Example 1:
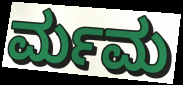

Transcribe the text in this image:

ರ್ಮಮ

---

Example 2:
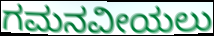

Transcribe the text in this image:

ಗಮನವೀಯಲು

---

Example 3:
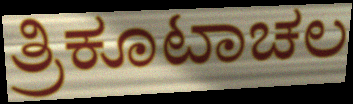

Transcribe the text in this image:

ತ್ರಿಕೂಟಾಚಲ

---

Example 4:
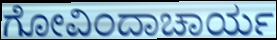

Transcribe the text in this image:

ಗೋವಿಂದಾಚಾರ್ಯ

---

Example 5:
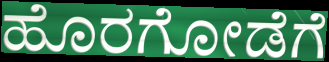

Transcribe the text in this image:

ಹೊರಗೋಡೆಗೆ